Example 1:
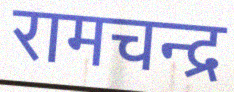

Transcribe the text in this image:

रामचन्द्र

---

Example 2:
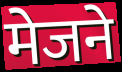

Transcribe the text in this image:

मेजने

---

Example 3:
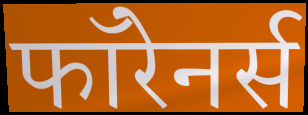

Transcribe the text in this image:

फॉरेनर्स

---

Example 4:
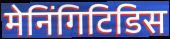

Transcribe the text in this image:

मेनिंगिटिडिस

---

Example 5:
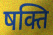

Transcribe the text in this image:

षक्ति